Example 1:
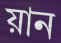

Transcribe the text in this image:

য়ান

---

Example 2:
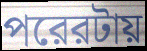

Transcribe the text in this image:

পরেরটায়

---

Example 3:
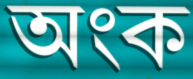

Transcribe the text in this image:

অংক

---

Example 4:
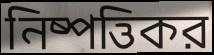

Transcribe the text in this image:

নিষ্পত্তিকর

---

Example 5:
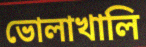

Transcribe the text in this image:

ভোলাখালি